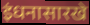
इंधनासारखे